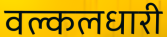
वल्कलधारी